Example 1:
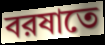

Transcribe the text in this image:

বরষাতে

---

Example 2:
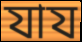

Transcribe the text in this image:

যায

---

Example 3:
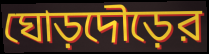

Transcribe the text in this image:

ঘোড়দৌড়ের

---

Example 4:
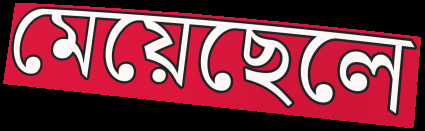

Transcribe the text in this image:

মেয়েছেলে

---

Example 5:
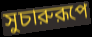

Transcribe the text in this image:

সুচারুরূপে